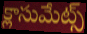
క్లాసుమేట్స్